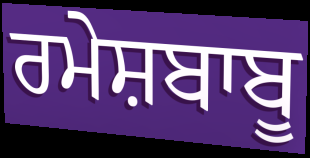
ਰਮੇਸ਼ਬਾਬੂ